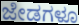
ಜೇಡಗಳೂ